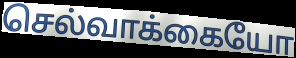
செல்வாக்கையோ